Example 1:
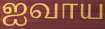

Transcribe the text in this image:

ஐவாய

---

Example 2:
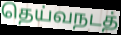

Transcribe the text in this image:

தெய்வநடத்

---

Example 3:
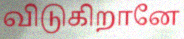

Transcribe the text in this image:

விடுகிறானே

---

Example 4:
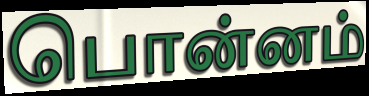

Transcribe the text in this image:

பொன்னம்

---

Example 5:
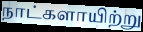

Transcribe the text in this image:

நாட்களாயிற்று